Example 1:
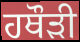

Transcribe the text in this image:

ਹਥੌੜੀ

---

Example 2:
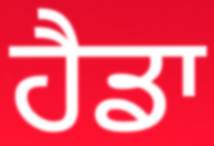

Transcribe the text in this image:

ਹੈਡਾ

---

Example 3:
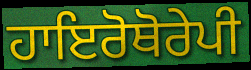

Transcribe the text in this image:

ਹਾਇਰੋਥੋਰੇਪੀ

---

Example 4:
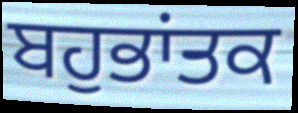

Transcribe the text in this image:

ਬਹੁਭਾਂਤਕ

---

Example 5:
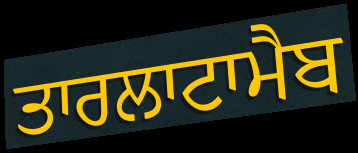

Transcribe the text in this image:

ਤਾਰਲਾਟਾਮੈਬ